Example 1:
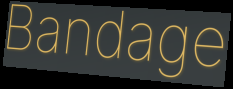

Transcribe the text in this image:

Bandage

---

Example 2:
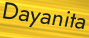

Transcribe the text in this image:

Dayanita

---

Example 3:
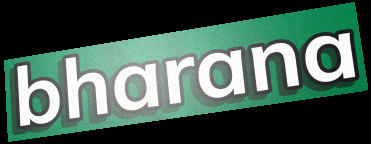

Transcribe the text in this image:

bharana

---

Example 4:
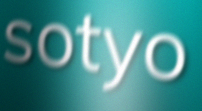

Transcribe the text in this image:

sotyo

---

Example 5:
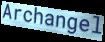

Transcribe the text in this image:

Archangel